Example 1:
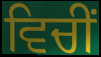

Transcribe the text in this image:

ਵਿਚੀਂ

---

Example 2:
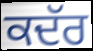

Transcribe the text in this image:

ਕਦੱਰ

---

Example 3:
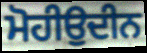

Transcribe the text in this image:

ਮੋਹੀਉਦੀਨ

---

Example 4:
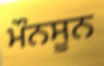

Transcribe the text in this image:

ਮੌਨਸੂਨ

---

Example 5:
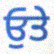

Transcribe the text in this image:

ਓੁਤੇ